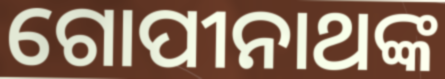
ଗୋପୀନାଥଙ୍କ